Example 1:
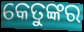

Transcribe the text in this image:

କେତୁଙ୍କର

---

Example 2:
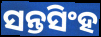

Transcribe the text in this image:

ସନ୍ତସିଂହ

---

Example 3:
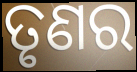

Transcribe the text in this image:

ତୃଣର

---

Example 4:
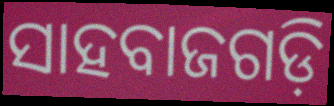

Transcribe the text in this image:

ସାହବାଜଗଡ଼ି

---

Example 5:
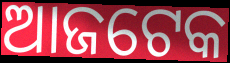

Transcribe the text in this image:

ଆଜଟେକ